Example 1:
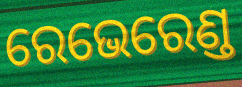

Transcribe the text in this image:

ରେଭେରେଣ୍ଡ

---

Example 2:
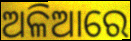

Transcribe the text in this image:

ଅଳିଆରେ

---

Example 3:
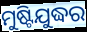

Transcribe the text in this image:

ମୁଷ୍ଟିଯୁଦ୍ଧର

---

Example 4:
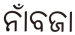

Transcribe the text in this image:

ନାଁବଜା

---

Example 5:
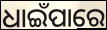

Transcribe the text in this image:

ଧାଇଁପାରେ